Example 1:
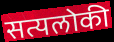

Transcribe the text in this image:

सत्यलोकी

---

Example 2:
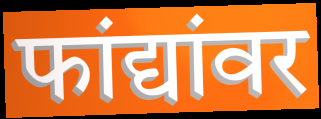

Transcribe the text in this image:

फांद्यांवर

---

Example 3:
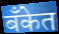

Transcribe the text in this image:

बँकेत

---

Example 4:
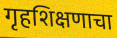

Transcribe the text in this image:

गृहशिक्षणाचा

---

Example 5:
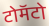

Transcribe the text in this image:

टोमॅटो